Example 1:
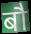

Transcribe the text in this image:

बौ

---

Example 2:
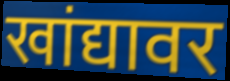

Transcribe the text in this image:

खांद्यावर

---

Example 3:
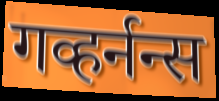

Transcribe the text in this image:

गव्हर्नन्स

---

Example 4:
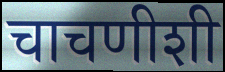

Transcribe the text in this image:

चाचणीशी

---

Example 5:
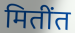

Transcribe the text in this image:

मितींत